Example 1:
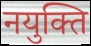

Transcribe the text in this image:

नयुक्ति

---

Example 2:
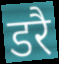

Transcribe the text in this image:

डरै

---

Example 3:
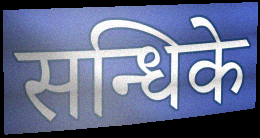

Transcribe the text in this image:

सन्धिके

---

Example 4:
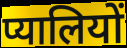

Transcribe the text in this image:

प्यालियों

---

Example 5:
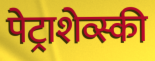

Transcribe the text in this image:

पेट्राशेव्स्की